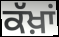
ਕੱਖ਼ਾਂ